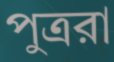
পুত্ররা